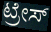
ಟ್ರೇಸ್